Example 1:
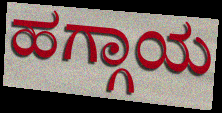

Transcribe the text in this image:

ಹಗ್ಗಾಯ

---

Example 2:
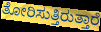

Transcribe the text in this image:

ತೋರಿಸುತ್ತಿರುತ್ತಾರೆ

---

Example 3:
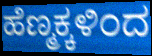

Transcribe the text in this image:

ಹೆಣ್ಮಕ್ಕಳಿಂದ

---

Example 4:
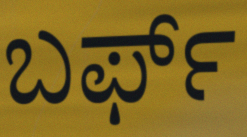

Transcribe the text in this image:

ಬರ್ಫ್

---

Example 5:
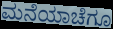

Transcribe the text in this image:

ಮನೆಯಾಚೆಗೂ